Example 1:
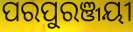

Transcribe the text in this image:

ପରପୁରଞ୍ଜୟୀ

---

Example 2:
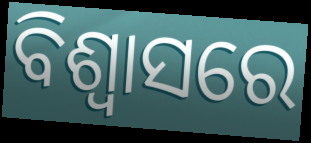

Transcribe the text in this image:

ବିଶ୍ବାସରେ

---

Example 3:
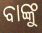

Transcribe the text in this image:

ବାଙ୍କୁ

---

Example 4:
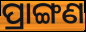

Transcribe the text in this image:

ପ୍ରାଙ୍ଗଣ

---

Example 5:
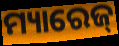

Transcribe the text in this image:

ମ୍ୟାରେଜ୍